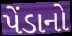
પેંડાનો